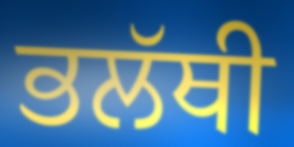
ਭਲੱਥੀ